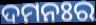
ଦମନଃର